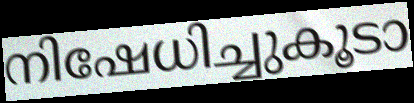
നിഷേധിച്ചുകൂടാ